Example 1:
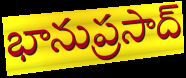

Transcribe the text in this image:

భానుప్రసాద్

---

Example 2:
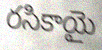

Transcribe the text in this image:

రసికాయై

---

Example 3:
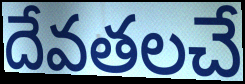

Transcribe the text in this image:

దేవతలచే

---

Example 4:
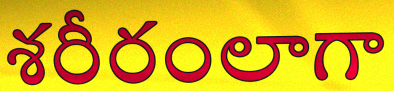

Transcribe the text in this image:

శరీరంలాగా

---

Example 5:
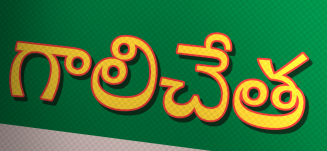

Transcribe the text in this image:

గాలిచేత